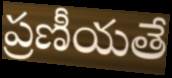
ప్రణీయతే